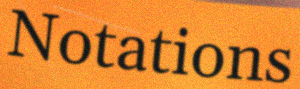
Notations